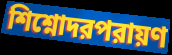
শিশ্নোদরপরায়ণ